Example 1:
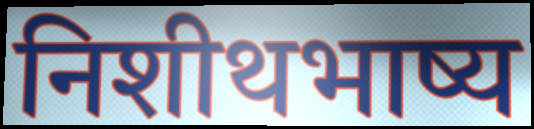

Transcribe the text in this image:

निशीथभाष्य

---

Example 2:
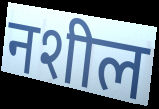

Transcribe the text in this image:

नशील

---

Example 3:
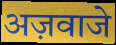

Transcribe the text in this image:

अज़वाजे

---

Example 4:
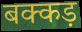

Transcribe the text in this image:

बक्कड़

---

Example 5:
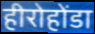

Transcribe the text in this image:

हीरोहोंडा